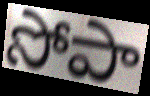
సోపా